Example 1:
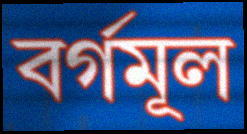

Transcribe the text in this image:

বৰ্গমূল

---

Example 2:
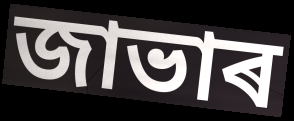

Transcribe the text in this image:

জাভাৰ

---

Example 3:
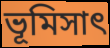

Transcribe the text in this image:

ভূমিসাৎ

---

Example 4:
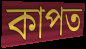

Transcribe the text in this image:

কাপত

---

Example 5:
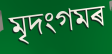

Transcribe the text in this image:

মৃদংগমৰ